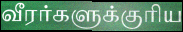
வீரர்களுக்குரிய